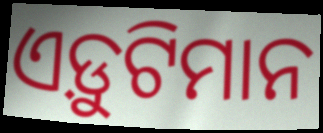
ଏଡ଼ୁଟିମାନ